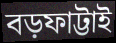
বড়ফাট্টাই